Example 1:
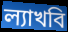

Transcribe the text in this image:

ল্যাখবি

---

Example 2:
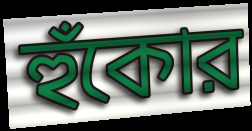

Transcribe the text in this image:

হুঁকোর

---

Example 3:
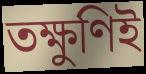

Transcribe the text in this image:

তক্ষুণিই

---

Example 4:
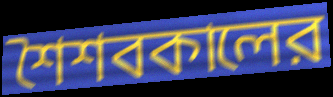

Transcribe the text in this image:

শৈশবকালের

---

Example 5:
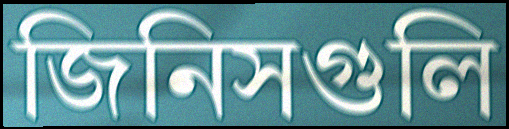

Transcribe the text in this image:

জিনিসগুলি